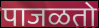
पाजळतो